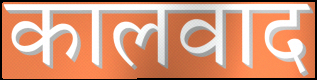
कालवाद